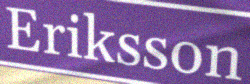
Eriksson